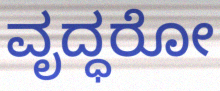
ವೃದ್ಧರೋ